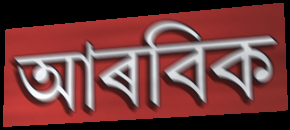
আৰবিক